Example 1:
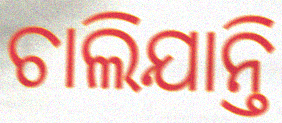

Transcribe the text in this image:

ଚାଲିଯାନ୍ତି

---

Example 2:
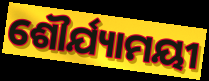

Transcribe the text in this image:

ଶୌର୍ଯ୍ୟାମୟୀ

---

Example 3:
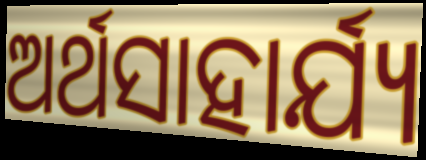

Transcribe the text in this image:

ଅର୍ଥସାହାର୍ଯ୍ୟ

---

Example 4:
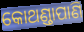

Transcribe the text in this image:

କୋଥଣ୍ଡାପାଣି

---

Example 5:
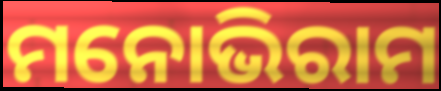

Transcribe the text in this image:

ମନୋଭିରାମ